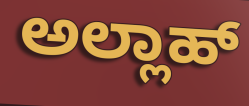
ಅಲ್ಲಾಹ್